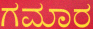
ಗಮಾರ